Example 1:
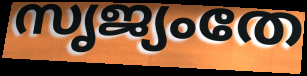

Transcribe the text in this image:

സൃജ്യംതേ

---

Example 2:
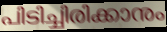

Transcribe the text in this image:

പിടിച്ചിരിക്കാനും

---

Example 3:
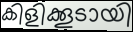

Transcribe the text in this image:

കിളിക്കൂടായി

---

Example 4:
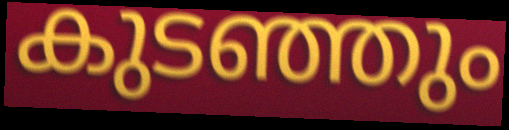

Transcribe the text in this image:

കുടഞ്ഞും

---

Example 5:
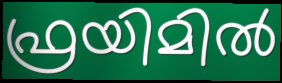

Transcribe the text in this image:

ഫ്രയിമിൽ